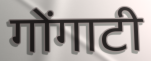
गोंगाटी